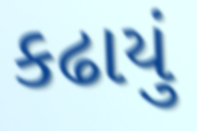
કઢાયું